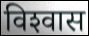
विश्‍वास